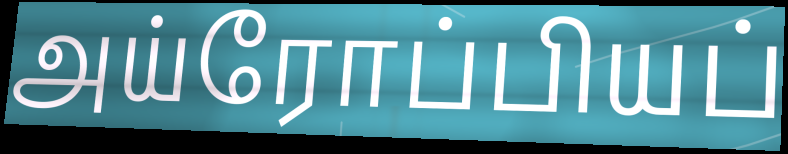
அய்ரோப்பியப்